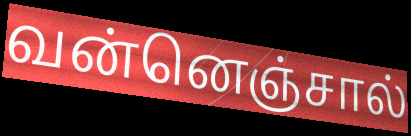
வன்னெஞ்சால்